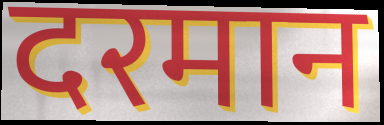
दरमान